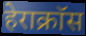
हेराक्रॉस